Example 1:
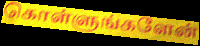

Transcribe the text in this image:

கொள்ளுங்களேன்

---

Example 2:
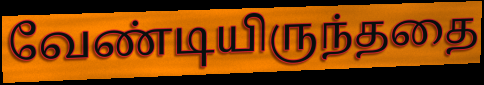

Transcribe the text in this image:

வேண்டியிருந்ததை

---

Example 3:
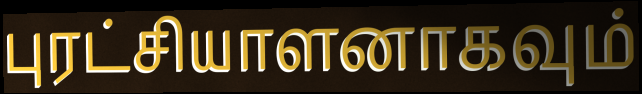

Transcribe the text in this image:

புரட்சியாளனாகவும்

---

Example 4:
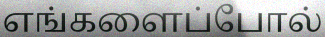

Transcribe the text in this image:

எங்களைப்போல்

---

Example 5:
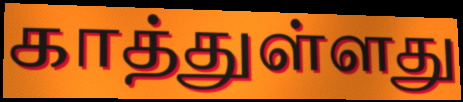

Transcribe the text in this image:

காத்துள்ளது